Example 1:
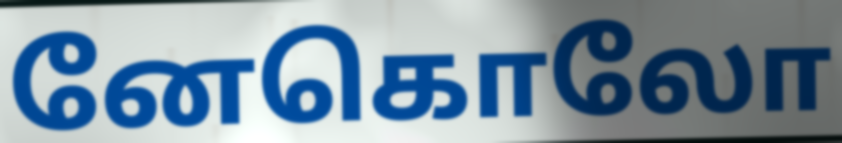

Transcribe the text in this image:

னேகொலோ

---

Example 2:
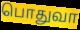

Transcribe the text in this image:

பொதுவா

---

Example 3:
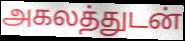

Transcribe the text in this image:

அகலத்துடன்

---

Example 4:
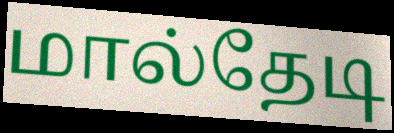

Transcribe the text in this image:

மால்தேடி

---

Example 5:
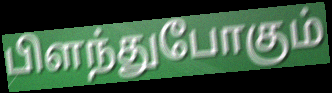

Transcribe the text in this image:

பிளந்துபோகும்